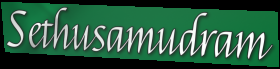
Sethusamudram